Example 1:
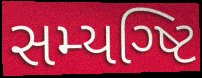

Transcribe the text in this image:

સમ્યગ્ષ્ટિ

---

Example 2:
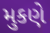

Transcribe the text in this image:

મુકણે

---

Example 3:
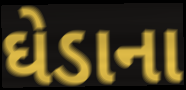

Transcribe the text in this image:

ઘેડાના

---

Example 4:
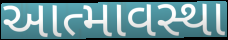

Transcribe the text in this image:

આત્માવસ્થા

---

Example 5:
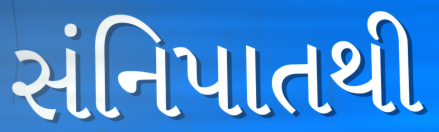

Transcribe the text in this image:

સંનિપાતથી